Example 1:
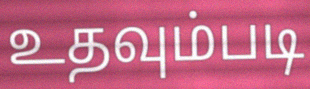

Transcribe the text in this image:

உதவும்படி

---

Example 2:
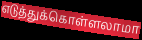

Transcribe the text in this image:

எடுத்துக்கொள்ளலாமா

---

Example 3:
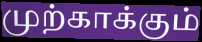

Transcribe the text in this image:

முற்காக்கும்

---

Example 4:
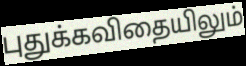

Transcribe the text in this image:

புதுக்கவிதையிலும்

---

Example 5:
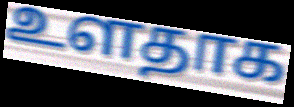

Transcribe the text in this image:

உளதாக